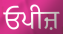
ਓਪੀਜ਼